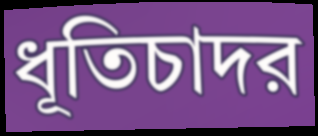
ধূতিচাদর